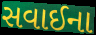
સવાઈના